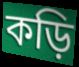
কড়ি